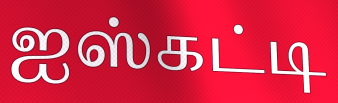
ஐஸ்கட்டி